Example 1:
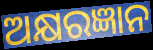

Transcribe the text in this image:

ଅକ୍ଷରଜ୍ଞାନ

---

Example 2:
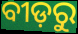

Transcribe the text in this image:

ବୀଡ଼ରୁ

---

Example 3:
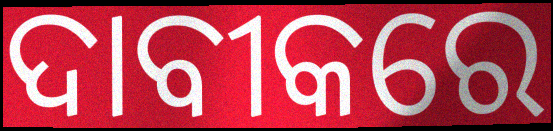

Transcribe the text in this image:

ଦାବୀକରେ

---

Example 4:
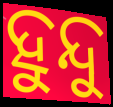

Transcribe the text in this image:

ହୁନ୍ଦୁ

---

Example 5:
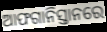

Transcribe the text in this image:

ଆଫଗାନିସ୍ତାନରେ